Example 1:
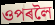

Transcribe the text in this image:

ওপৰলৈ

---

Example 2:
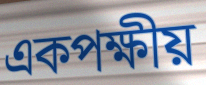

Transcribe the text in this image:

একপক্ষীয়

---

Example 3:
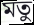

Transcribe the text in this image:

মতু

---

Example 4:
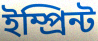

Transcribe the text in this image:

ইম্প্ৰিন্ট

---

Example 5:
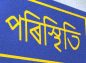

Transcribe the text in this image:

পৰিস্থিতি